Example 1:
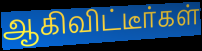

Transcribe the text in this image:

ஆகிவிட்டீர்கள்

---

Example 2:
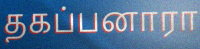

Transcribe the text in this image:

தகப்பனாரா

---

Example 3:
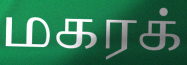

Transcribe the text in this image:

மகரக்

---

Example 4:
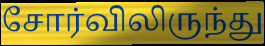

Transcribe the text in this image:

சோர்விலிருந்து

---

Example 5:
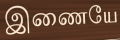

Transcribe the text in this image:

இணையே